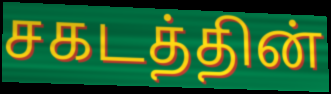
சகடத்தின்